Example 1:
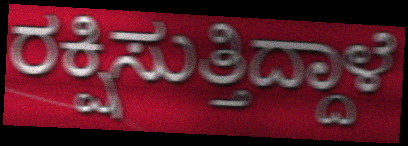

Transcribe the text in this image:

ರಕ್ಷಿಸುತ್ತಿದ್ದಾಳೆ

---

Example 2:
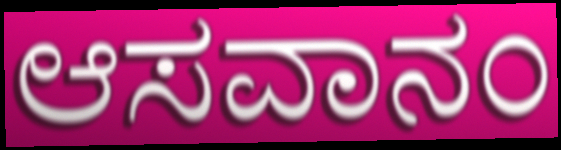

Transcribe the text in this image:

ಆಸವಾನಂ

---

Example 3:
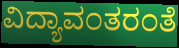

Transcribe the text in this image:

ವಿದ್ಯಾವಂತರಂತೆ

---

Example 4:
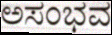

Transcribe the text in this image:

ಅಸಂಭವ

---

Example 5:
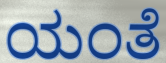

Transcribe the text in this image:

ಯಂತೆ